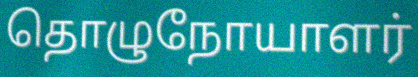
தொழுநோயாளர்